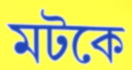
মটকে